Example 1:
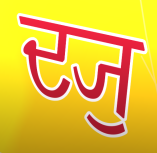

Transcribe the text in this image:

ਦ੍ਯੁ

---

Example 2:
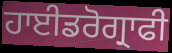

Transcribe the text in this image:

ਹਾਈਡਰੋਗ੍ਰਾਫੀ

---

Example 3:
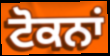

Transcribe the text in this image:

ਟੋਕਨਾਂ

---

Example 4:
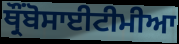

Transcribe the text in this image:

ਥ੍ਰੌਂਬੋਸਾਈਟੀਮੀਆ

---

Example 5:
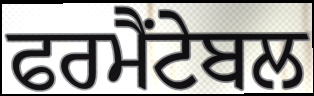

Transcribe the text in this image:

ਫਰਮੈਂਟੇਬਲ